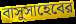
বাসুসাহেবের